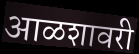
आळशावरी